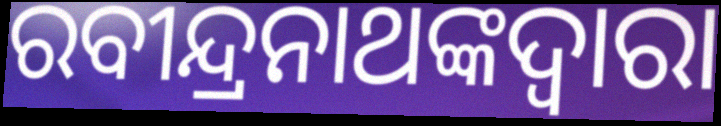
ରବୀନ୍ଦ୍ରନାଥଙ୍କଦ୍ୱାରା